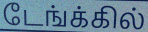
டேங்க்கில்